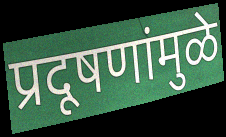
प्रदूषणांमुळे